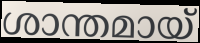
ശാന്തമായ്